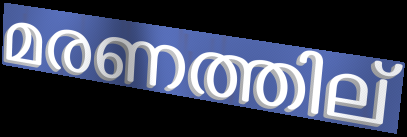
മരണത്തില്